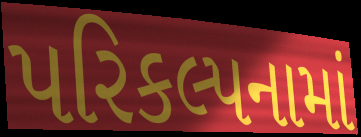
પરિકલ્પનામાં